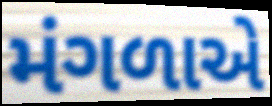
મંગળાએ